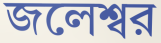
জলেশ্বর